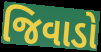
જિવાડો